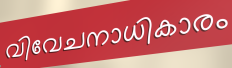
വിവേചനാധികാരം